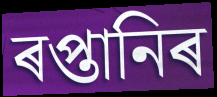
ৰপ্তানিৰ